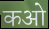
कओ